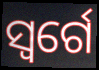
ସ୍ୱର୍ଗେ